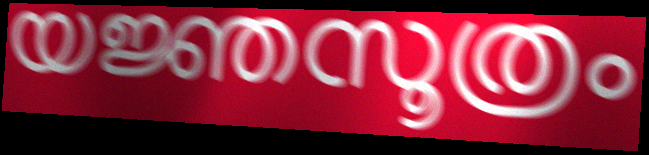
യജ്ഞസൂത്രം